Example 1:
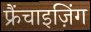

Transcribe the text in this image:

फ्रैंचाइज़िंग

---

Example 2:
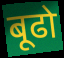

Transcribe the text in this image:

बूढो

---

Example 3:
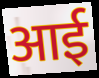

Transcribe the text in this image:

आई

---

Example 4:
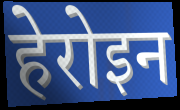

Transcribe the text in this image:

हेरोइन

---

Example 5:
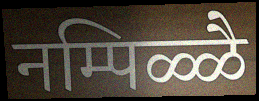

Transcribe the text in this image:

नम्पिळ्ळै